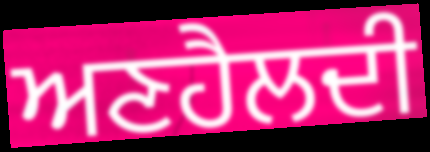
ਅਣਹੈਲਦੀ